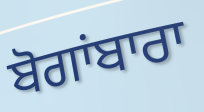
ਬੋਗਾਂਬਾਰਾ